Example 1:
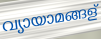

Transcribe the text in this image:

വ്യായാമങ്ങള്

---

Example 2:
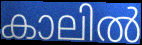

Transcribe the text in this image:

കാലിൽ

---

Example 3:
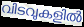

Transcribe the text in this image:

വിടവുകളിൽ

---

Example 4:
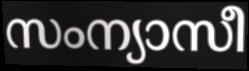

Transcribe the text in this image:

സംന്യാസീ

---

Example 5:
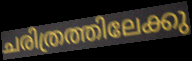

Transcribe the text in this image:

ചരിത്രത്തിലേക്കു